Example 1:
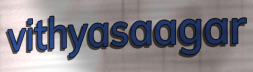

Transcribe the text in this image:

vithyasaagar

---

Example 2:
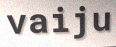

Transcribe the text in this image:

vaiju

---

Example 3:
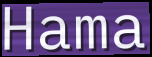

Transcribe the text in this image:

Hama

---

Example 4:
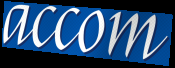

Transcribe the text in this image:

accom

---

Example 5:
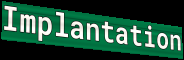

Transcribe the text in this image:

Implantation